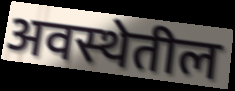
अवस्थेतील